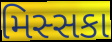
મિસ્સકા